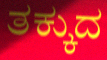
ತಕ್ಕುದ